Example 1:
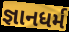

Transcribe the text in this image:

જ્ઞાનધર્મ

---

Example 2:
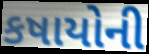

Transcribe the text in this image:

કષાયોની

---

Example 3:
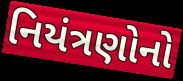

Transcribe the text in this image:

નિયંત્રણોનો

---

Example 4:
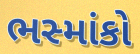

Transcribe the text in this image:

ભસ્માંકો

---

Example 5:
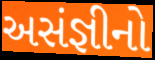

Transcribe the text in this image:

અસંજ્ઞીનો